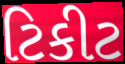
ટિકીટ